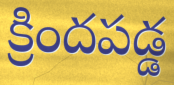
క్రిందపడ్డ